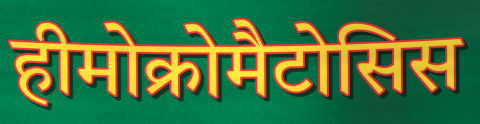
हीमोक्रोमैटोसिस